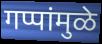
गप्पांमुळे